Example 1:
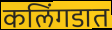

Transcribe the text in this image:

कलिंगडात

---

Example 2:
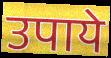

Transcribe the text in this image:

उपाये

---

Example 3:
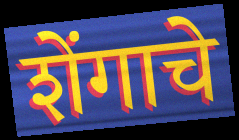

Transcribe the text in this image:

शेंगाचे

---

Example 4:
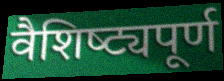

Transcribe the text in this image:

वैशिष्‍ट्यपूर्ण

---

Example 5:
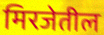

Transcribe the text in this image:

मिरजेतील